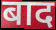
बाद